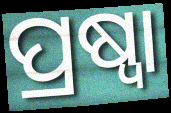
ପ୍ରଷ୍ୱା